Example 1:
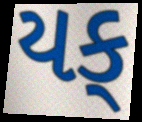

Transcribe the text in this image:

યક્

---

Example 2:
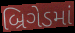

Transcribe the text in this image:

બ્રિગેડમાં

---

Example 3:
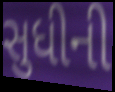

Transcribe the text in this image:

સુધીની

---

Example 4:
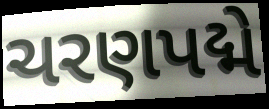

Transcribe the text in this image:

ચરણપદ્મે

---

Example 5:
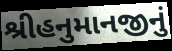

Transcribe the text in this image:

શ્રીહનુમાનજીનું